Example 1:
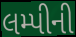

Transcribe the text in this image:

લમ્પીની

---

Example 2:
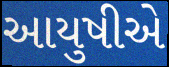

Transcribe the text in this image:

આયુષીએ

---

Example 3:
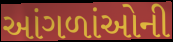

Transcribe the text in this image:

આંગળાંઓની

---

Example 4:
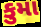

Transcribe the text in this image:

કુમા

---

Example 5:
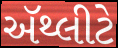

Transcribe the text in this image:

ઍથ્લીટે